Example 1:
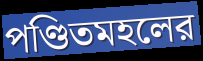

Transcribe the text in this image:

পণ্ডিতমহলের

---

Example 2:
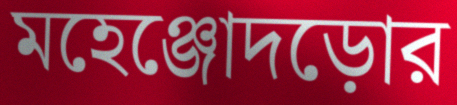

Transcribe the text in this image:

মহেঞ্জোদড়োর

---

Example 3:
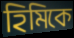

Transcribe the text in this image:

হিমিকে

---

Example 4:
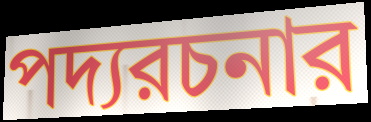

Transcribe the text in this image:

পদ্যরচনার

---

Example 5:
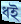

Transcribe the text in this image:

ধই